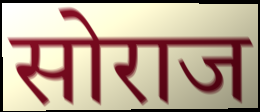
सोराज